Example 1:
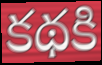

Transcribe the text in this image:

కథకి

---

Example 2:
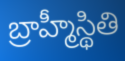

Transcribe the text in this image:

బ్రాహ్మీస్థితి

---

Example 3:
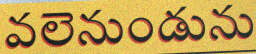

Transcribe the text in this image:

వలెనుండును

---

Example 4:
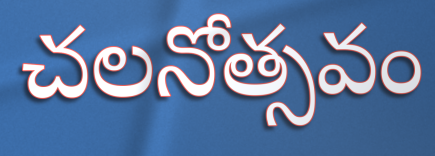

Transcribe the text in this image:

చలనోత్సవం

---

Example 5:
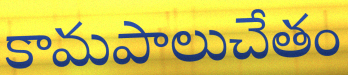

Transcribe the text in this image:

కామపాలుచేతం